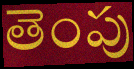
తెంపు